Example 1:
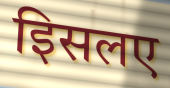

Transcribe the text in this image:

इिसलए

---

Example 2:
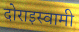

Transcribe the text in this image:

दोराइस्वामी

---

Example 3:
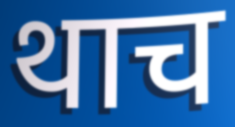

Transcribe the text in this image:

थाच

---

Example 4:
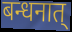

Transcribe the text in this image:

बन्धनात्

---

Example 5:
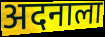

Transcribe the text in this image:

अदनाला